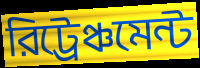
রিট্রেঞ্চমেন্ট